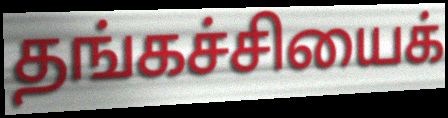
தங்கச்சியைக்